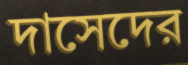
দাসেদের